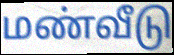
மண்வீடு